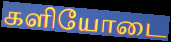
களியோடை